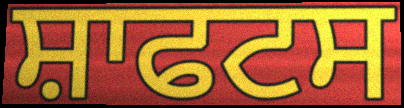
ਸ਼ਾਫਟਸ